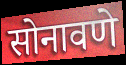
सोनावणे